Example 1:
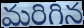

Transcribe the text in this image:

మరిగిన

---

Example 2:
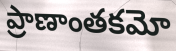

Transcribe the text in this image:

ప్రాణాంతకమో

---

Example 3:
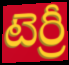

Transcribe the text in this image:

టెర్రీ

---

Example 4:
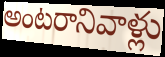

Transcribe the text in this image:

అంటరానివాళ్లు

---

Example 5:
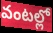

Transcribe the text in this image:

వంటల్లో